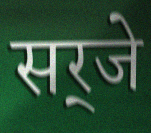
सर्जे